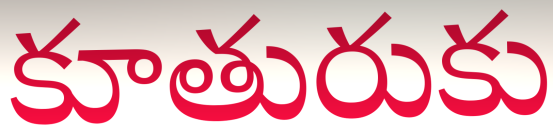
కూతురుకు